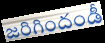
జరిగిందండీ